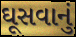
ઘૂસવાનું